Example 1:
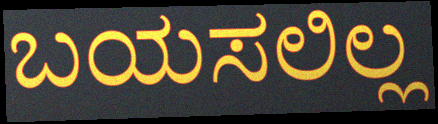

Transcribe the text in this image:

ಬಯಸಲಿಲ್ಲ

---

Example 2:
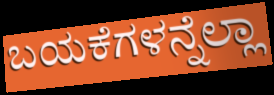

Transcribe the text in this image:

ಬಯಕೆಗಳನ್ನೆಲ್ಲಾ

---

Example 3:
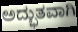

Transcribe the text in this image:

ಅದ್ಭುತವಾಗಿ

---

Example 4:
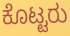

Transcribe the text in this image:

ಕೊಟ್ಟರು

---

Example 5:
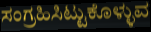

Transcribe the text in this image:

ಸಂಗ್ರಹಿಸಿಟ್ಟುಕೊಳ್ಳುವ